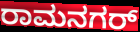
ರಾಮನಗರ್